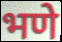
भणे